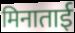
मिनाताई